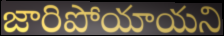
జారిపోయాయని